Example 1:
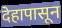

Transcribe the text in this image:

देहापासून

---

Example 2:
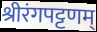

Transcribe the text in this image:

श्रीरंगपट्टणम्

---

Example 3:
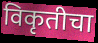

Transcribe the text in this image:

विकृतीचा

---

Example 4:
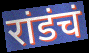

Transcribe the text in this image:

रांडंचं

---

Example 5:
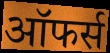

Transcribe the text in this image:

ऑफर्स